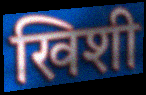
खिशी